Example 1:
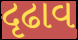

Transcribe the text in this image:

દૃઢાવ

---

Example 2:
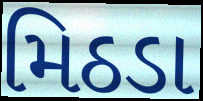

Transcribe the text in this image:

મિઠડા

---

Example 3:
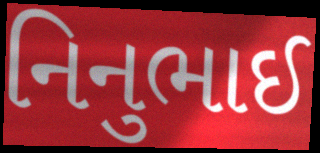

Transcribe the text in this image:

નિનુભાઈ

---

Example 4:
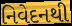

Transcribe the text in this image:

નિવેદનથી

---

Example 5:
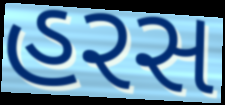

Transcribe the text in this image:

હરસ